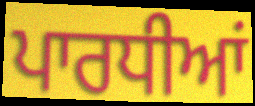
ਪਾਰਧੀਆਂ